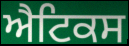
ਐਟਿਕਸ